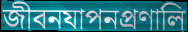
জীবনযাপনপ্রণালি